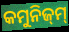
କମୁନିଜ୍‌ମ୍